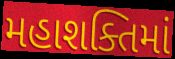
મહાશક્તિમાં